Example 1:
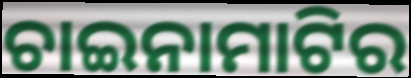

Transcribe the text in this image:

ଚାଇନାମାଟିର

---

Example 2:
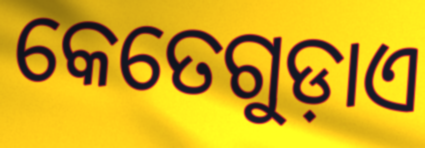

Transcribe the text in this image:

କେତେଗୁଡ଼ାଏ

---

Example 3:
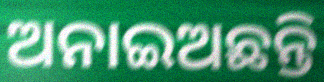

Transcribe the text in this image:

ଅନାଇଅଛନ୍ତି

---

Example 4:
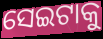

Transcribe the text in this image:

ସେଇଟାକୁ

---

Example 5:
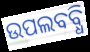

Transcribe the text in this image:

ଉପଲବବ୍ଧି